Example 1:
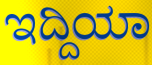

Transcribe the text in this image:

ಇದ್ದಿಯಾ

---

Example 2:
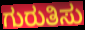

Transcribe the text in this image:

ಗುರುತಿಸು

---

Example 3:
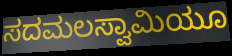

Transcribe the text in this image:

ಸದಮಲಸ್ವಾಮಿಯೂ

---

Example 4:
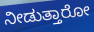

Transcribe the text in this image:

ನೀಡುತ್ತಾರೋ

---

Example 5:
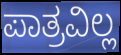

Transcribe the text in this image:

ಪಾತ್ರವಿಲ್ಲ